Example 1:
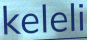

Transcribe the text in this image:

keleli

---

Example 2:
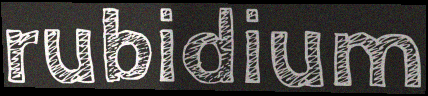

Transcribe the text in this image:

rubidium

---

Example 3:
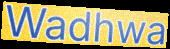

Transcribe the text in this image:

Wadhwa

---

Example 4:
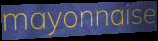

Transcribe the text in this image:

mayonnaise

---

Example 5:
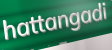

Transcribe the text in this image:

hattangadi